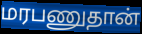
மரபணுதான்